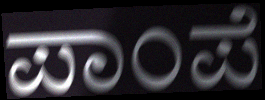
ಪಾಂಪೆ